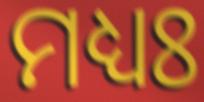
ମଧ୍ୟଃ